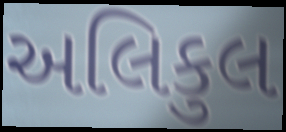
અલિકુલ